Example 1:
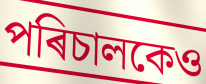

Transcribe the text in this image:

পৰিচালকেও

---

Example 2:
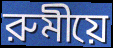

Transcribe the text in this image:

ৰুমীয়ে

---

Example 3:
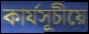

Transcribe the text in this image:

কাৰ্যসূচীয়ে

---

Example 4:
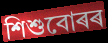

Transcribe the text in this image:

শিশুবোৰৰ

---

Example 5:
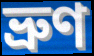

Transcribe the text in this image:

ভ্ৰুণ